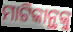
ମାଟିକାନ୍ଥକୁ